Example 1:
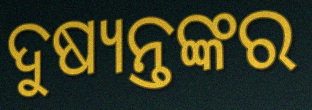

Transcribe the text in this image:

ଦୁଷ୍ୟନ୍ତଙ୍କର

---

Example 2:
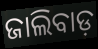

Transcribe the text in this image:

ଜାଲିବାଡ଼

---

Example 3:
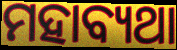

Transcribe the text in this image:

ମହାବ୍ୟଥା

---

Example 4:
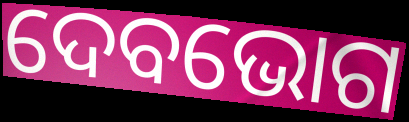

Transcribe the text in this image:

ଦେବଭୋଗ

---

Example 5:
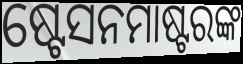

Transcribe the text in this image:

ଷ୍ଟେସନମାଷ୍ଟରଙ୍କ